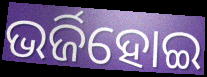
ଭର୍ଜିହୋଇ